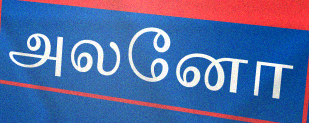
அலனோ